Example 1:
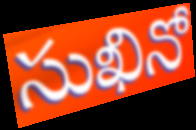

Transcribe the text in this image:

సుఖినో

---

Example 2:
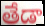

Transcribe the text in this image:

తేడా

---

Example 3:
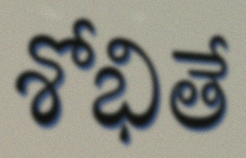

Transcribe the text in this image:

శోభితే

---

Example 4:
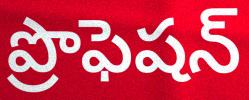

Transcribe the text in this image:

ప్రొఫెషన్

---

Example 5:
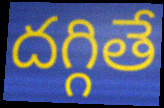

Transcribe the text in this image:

దగ్గితే